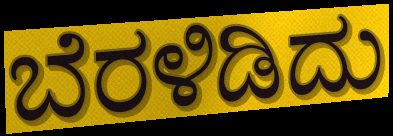
ಬೆರಳಿಡಿದು